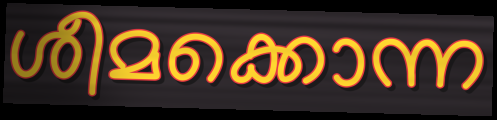
ശീമക്കൊന്ന